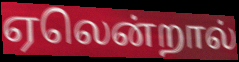
ஏலென்றால்